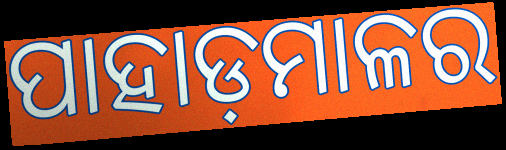
ପାହାଡ଼ମାଳର